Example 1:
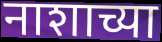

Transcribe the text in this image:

नाशाच्या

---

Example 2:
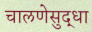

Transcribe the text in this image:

चालणेसुद्धा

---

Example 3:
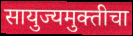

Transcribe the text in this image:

सायुज्यमुक्तीचा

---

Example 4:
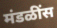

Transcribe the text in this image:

मंडळींस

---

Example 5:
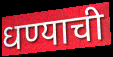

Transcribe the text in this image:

धण्याची